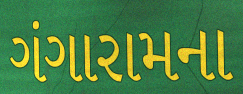
ગંગારામના